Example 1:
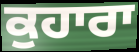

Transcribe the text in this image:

ਕੁਹਾਰਾ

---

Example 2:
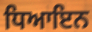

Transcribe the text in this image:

ਧਿਆਇਨ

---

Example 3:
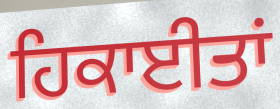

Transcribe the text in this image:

ਹਿਕਾਈਤਾਂ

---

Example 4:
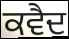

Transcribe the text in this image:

ਕਵੈਦ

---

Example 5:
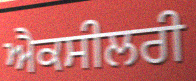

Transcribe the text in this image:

ਐਕਸੀਲਰੀ